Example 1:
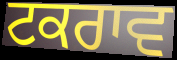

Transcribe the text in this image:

ਟਕਰਾਵ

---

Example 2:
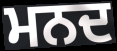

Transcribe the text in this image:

ਮਨਦ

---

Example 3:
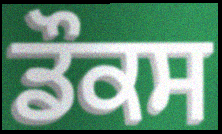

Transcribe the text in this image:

ਡੌਕਸ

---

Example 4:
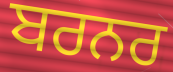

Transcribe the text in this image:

ਬਰਨਰ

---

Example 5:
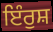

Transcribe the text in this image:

ਇੰਰੁਸ਼